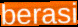
berasi